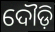
ଦୌଡ଼ି